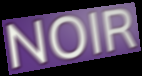
NOIR